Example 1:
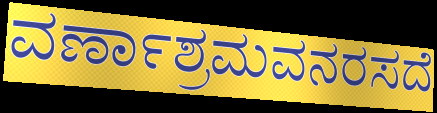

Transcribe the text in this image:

ವರ್ಣಾಶ್ರಮವನರಸದೆ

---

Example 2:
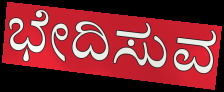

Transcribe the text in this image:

ಭೇದಿಸುವ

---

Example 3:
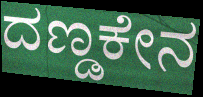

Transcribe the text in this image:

ದಣ್ಡಕೇನ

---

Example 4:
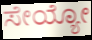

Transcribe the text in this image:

ಸೇಯ್ಯೋ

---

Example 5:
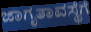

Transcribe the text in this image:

ಜಾಗೃತಾವಸ್ಥೆಗೆ